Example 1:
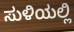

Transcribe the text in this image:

ಸುಳಿಯಲ್ಲಿ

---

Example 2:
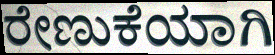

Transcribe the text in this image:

ರೇಣುಕೆಯಾಗಿ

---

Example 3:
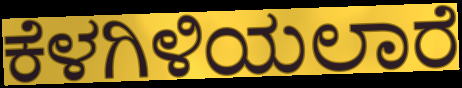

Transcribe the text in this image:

ಕೆಳಗಿಳಿಯಲಾರೆ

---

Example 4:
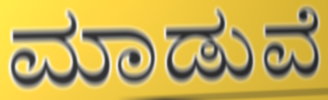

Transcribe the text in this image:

ಮಾಡುವೆ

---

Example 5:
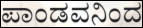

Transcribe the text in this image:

ಪಾಂಡವನಿಂದ